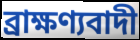
ব্রাক্ষণ্যবাদী